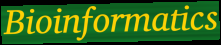
Bioinformatics